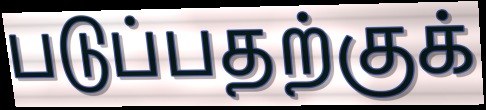
படுப்பதற்குக்